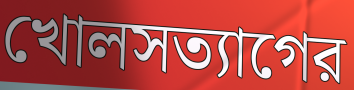
খোলসত্যাগের